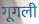
गूगली